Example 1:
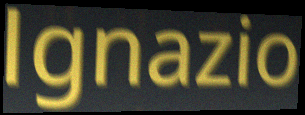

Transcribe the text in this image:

Ignazio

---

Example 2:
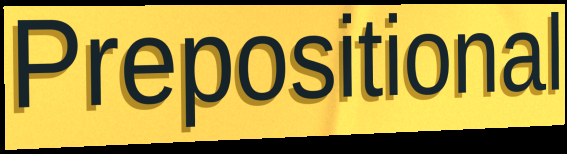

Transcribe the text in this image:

Prepositional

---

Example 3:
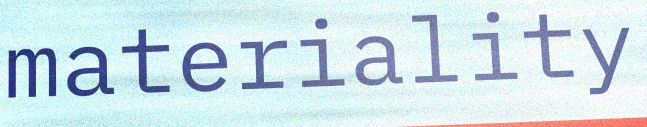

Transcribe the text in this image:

materiality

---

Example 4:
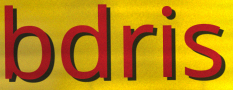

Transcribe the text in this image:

bdris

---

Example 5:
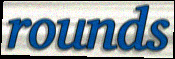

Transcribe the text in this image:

rounds